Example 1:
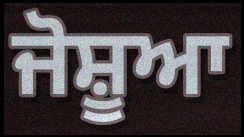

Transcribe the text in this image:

ਜੋਸ਼ੂਆ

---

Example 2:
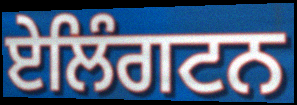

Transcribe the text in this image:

ਏਲਿੰਗਟਨ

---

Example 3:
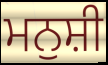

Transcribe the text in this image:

ਮਨੁਸ਼ੀ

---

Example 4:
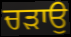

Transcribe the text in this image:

ਚੜਾਉ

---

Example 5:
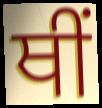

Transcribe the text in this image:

ਥੀਂ